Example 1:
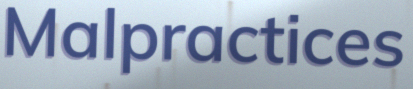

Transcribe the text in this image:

Malpractices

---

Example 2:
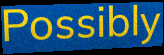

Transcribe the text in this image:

Possibly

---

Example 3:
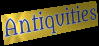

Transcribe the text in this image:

Antiquities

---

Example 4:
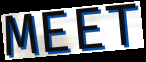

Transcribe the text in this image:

MEET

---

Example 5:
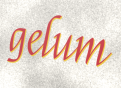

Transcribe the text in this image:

gelum